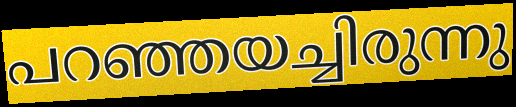
പറഞ്ഞയച്ചിരുന്നു